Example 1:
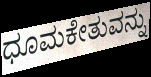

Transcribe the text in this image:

ಧೂಮಕೇತುವನ್ನು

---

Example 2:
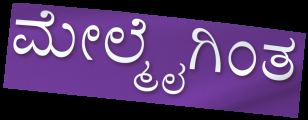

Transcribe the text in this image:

ಮೇಲ್ಮೈಗಿಂತ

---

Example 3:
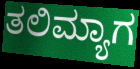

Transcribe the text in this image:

ತಲಿಮ್ಯಾಗ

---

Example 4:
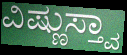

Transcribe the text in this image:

ವಿಷ್ಣುಸ್ತ್ವಾ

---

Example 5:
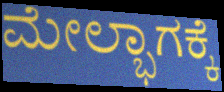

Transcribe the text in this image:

ಮೇಲ್ಭಾಗಕ್ಕೆ